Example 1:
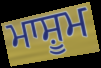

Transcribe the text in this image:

ਮਾਸ਼ੂਮ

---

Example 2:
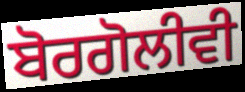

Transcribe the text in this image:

ਬੋਰਗੋਲੀਵੀ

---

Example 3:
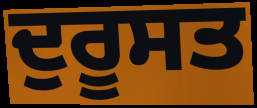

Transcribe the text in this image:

ਦੁਰੂਸਤ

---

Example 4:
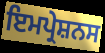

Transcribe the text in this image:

ਇਮਪ੍ਰੇਸ਼ਨਸ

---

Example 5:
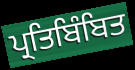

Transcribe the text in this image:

ਪ੍ਰਤਿਬਿੰਬਿਤ